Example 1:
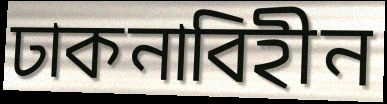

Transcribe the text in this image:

ঢাকনাবিহীন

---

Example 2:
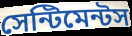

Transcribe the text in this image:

সেন্টিমেন্টস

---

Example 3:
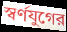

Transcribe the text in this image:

স্বর্ণযুগের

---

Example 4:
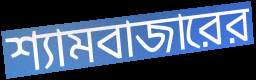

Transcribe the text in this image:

শ্যামবাজারের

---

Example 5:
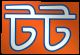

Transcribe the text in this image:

টট